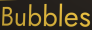
Bubbles